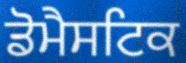
ਡੋਮੈਸਟਿਕ